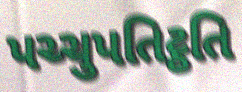
પચ્ચુપતિટ્ઠતિ